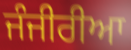
ਜੰਜੀਰੀਆ